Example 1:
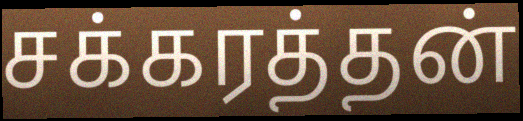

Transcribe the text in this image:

சக்கரத்தன்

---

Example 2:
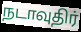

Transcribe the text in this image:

நடாவுதிர்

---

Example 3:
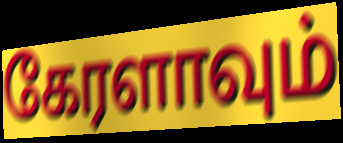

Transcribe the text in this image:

கேரளாவும்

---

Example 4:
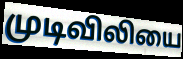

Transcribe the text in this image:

முடிவிலியை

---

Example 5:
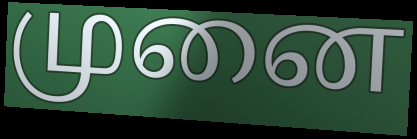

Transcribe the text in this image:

முனை